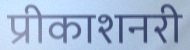
प्रीकाशनरी